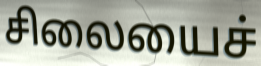
சிலையைச்